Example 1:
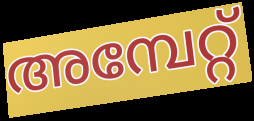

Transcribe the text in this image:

അമ്പേറ്റ്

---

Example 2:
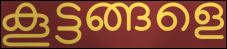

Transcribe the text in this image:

കൂട്ടങ്ങളെ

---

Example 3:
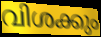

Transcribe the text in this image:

വിശക്കും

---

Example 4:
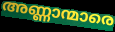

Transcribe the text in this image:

അണ്ണാന്മാരെ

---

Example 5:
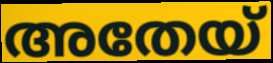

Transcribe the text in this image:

അതേയ്